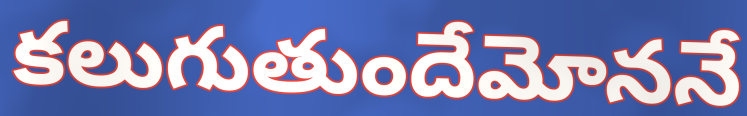
కలుగుతుందేమోననే